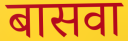
बासवा